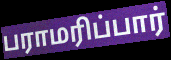
பராமரிப்பார்